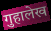
गुहालेख